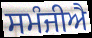
ਸਮੰਜੀਐ